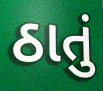
ઠાતું